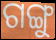
ଗଙ୍ଗୁ